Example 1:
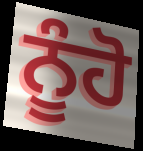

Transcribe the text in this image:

ਨੂੰਹੋ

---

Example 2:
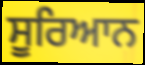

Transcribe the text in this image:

ਸੂਰਿਆਨ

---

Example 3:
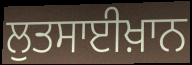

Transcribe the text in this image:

ਲੁਤਸਾਈਖ਼ਾਨ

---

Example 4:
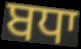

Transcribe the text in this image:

ਬਧਾ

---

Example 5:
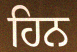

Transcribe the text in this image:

ਹਿਨ